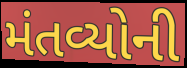
મંતવ્યોની